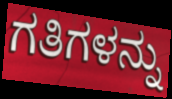
ಗತಿಗಳನ್ನು